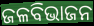
ଜଳବିଭାଜନ